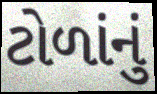
ટોળાંનું